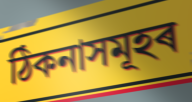
ঠিকনাসমূহৰ